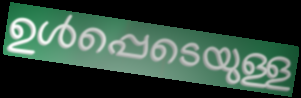
ഉൾപ്പെടെയുള്ള